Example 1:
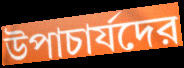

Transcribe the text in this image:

উপাচার্যদের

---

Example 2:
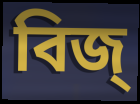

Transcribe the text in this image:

বিজ্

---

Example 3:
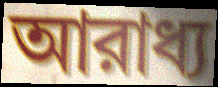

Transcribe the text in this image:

আরাধ্য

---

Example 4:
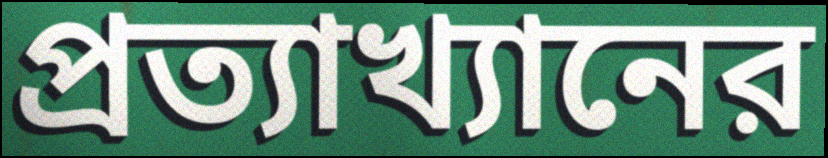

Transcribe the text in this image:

প্রত্যাখ্যানের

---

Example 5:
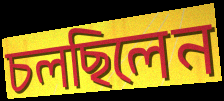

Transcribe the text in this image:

চলছিলেন